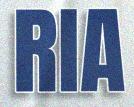
RIA